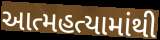
આત્મહત્યામાંથી